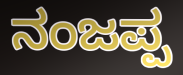
ನಂಜಪ್ಪ